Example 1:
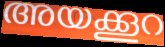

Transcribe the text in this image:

അയക്കൂറ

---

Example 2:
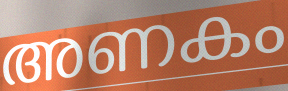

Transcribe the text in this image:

അണകം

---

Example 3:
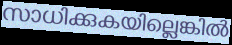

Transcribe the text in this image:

സാധിക്കുകയില്ലെങ്കിൽ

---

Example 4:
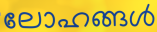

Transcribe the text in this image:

ലോഹങ്ങൾ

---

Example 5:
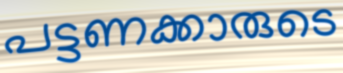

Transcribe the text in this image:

പട്ടണക്കാരുടെ